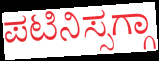
ಪಟಿನಿಸ್ಸಗ್ಗಾ